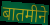
बातमीने